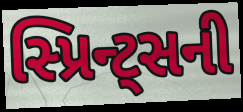
સ્પ્રિન્ટ્સની